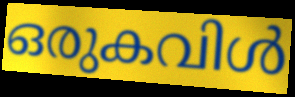
ഒരുകവിൾ